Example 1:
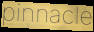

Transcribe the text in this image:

pinnacle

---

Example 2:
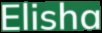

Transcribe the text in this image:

Elisha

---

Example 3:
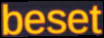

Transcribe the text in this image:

beset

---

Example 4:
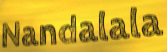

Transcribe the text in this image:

Nandalala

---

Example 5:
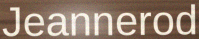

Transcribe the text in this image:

Jeannerod